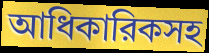
আধিকারিকসহ